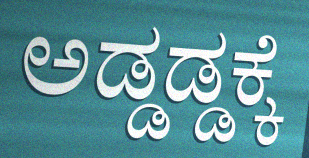
ಅಡ್ಡಡ್ಡಕ್ಕೆ